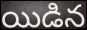
యిడిన